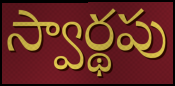
స్వార్థపు